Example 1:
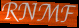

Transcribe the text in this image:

RNMF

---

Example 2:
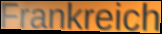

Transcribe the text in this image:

Frankreich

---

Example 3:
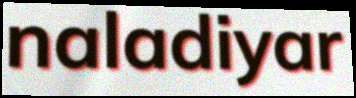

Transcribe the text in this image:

naladiyar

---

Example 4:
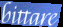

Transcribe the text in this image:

bittare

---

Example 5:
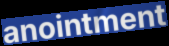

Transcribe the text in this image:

anointment